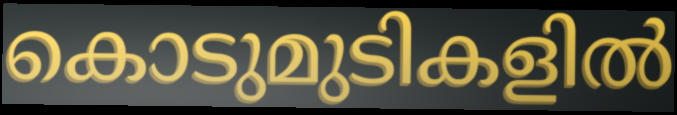
കൊടുമുടികളിൽ